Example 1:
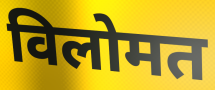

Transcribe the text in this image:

विलोमत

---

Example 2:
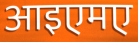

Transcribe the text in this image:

आइएमए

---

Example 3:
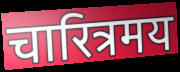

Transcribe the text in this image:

चारित्रमय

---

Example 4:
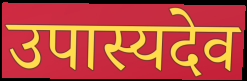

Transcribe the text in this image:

उपास्यदेव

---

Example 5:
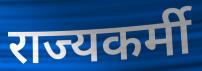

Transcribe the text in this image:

राज्यकर्मी